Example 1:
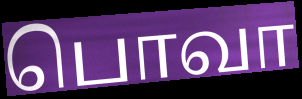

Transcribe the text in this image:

பொவா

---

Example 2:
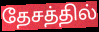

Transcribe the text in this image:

தேசத்தில்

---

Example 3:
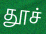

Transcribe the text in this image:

தூச்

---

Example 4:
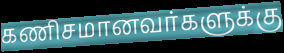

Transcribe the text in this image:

கணிசமானவர்களுக்கு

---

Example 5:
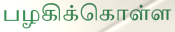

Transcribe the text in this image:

பழகிக்கொள்ள